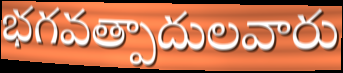
భగవత్పాదులవారు